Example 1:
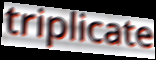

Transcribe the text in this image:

triplicate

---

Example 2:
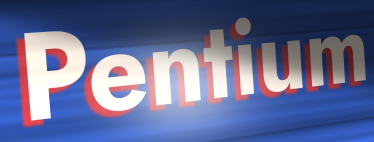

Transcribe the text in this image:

Pentium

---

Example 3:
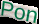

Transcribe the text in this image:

Pon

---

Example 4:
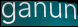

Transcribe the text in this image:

ganun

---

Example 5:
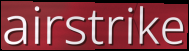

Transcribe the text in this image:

airstrike